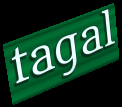
tagal